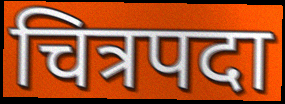
चित्रपदा